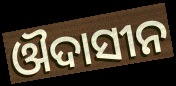
ଔଦାସୀନ